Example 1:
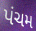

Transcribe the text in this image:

પંચમ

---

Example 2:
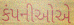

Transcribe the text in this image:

કંપનીઓએ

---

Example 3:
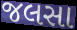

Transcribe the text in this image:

જલસા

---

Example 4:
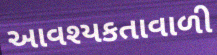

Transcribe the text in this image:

આવશ્યકતાવાળી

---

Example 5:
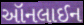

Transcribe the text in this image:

ઑનલાઈન